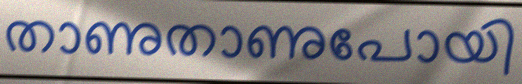
താണുതാണുപോയി